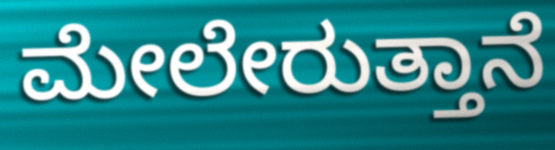
ಮೇಲೇರುತ್ತಾನೆ